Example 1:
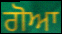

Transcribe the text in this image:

ਗੋਆ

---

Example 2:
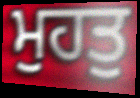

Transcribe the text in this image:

ਮੁਹਤੁ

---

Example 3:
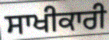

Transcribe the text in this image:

ਸਾਖੀਕਾਰੀ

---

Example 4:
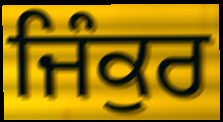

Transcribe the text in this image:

ਜਿੰਕੁਰ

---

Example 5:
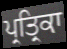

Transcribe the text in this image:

ਪ੍ਰਤ੍ਰਿਕਾ